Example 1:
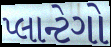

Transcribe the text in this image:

પ્લાન્ટેગો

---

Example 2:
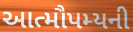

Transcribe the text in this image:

આત્મૌપમ્યની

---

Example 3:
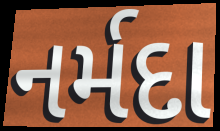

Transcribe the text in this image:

નર્મદા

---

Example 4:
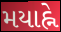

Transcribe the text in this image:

મયાહ્ને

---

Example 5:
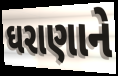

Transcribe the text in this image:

ઘરાણાને